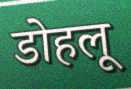
डोहलू